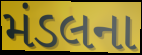
મંડલના